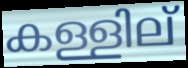
കള്ളില്